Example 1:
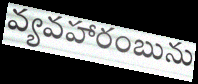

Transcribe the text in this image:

వ్యవహారంబును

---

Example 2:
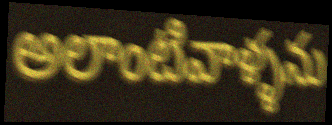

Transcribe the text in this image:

అలాంటివాళ్ళను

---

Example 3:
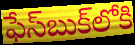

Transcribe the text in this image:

ఫేస్‌బుక్‌లోకి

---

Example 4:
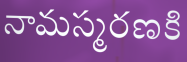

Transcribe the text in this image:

నామస్మరణకి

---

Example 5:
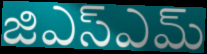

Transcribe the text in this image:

జిఎస్ఎమ్